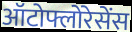
ऑटोफ्लोरेसेंस